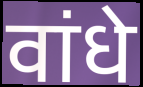
वांधे